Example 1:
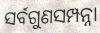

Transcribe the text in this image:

ସର୍ବଗୁଣସମ୍ପନ୍ନା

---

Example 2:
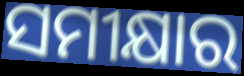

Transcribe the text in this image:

ସମୀକ୍ଷାର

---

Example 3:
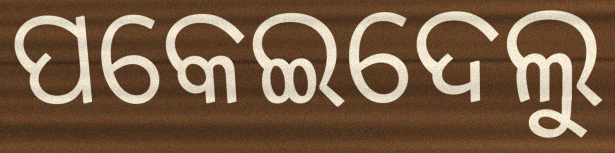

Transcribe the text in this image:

ପକେଇଦେଲୁ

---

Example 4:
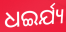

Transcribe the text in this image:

ଧଇର୍ଯ୍ୟ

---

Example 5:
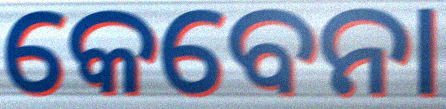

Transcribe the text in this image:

କେବେନା